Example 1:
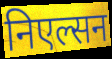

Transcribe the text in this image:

निएल्सन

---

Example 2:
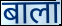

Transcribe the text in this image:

बाला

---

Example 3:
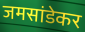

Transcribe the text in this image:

जमसांडेकर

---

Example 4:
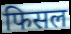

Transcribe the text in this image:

फिसल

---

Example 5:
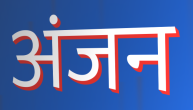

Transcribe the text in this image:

अंजन